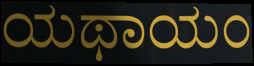
ಯಥಾಯಂ